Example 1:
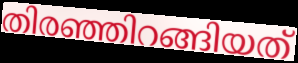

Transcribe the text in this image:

തിരഞ്ഞിറങ്ങിയത്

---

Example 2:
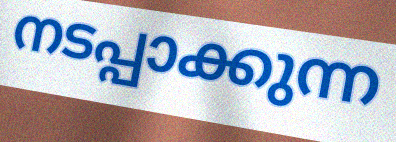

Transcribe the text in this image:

നടപ്പാക്കുന്ന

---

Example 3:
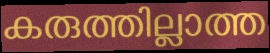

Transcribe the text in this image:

കരുത്തില്ലാത്ത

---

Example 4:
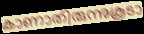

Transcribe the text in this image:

കാണാതിരുന്നുകൂടാ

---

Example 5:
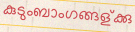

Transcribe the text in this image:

കുടുംബാംഗങ്ങള്ക്കു